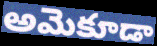
అమెకూడా